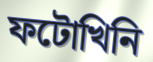
ফটোখিনি